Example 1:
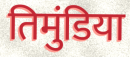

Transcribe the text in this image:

तिमुंडिया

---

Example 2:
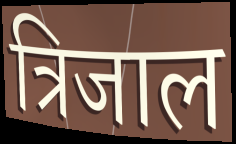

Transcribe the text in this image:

त्रिजाल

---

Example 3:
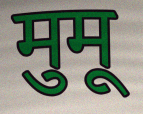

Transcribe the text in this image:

मुमू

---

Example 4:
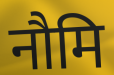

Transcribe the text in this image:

नौमि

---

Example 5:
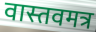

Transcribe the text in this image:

वास्तवमत्र